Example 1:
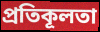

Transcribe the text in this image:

প্রতিকূলতা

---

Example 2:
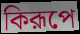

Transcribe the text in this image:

কিরূপে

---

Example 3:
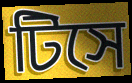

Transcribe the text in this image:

টিসে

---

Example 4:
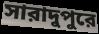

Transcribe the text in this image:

সারাদুপুরে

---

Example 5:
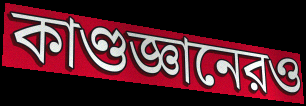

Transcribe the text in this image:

কাণ্ডজ্ঞানেরও